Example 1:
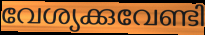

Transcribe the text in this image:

വേശ്യക്കുവേണ്ടി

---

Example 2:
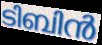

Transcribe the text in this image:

ടിബിൻ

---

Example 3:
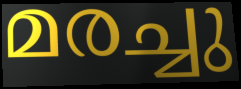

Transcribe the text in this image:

മരച്ചു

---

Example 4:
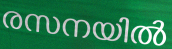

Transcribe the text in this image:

രസനയിൽ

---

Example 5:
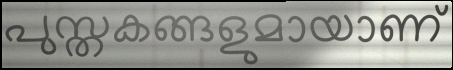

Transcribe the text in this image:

പുസ്തകങ്ങളുമായാണ്